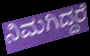
ನಿಮಗಿದ್ದರೆ